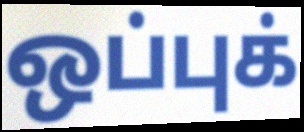
ஒப்புக்